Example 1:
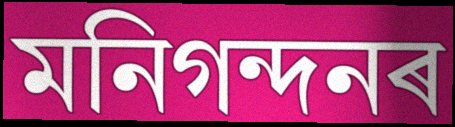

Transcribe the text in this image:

মনিগন্দনৰ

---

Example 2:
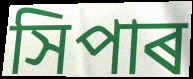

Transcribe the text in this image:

সিপাৰ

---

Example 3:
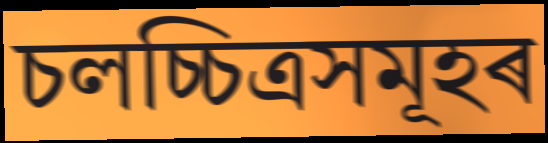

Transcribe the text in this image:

চলচ্চিত্ৰসমূহৰ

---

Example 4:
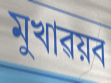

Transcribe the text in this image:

মুখাৱয়ব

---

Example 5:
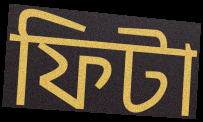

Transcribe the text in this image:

ফিটা